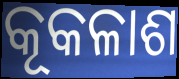
କୂକଳାଶ